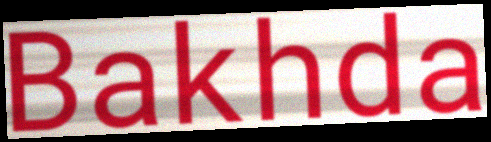
Bakhda